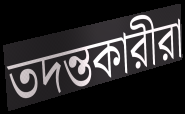
তদন্তকারীরা